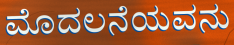
ಮೊದಲನೆಯವನು